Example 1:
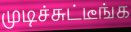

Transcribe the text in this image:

முடிச்சுட்டீங்க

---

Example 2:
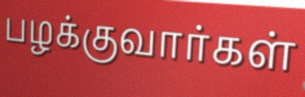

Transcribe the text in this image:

பழக்குவார்கள்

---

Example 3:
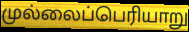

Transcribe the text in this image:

முல்லைப்பெரியாறு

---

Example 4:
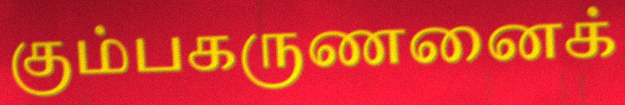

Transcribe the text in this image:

கும்பகருணனைக்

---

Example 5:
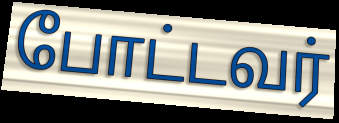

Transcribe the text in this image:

போட்டவர்